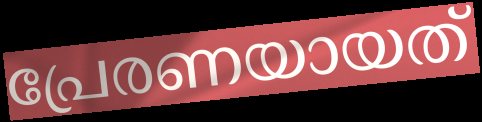
പ്രേരണയായത്